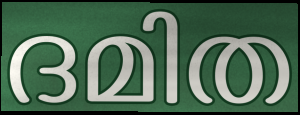
ദമിത